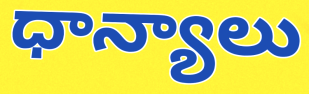
ధాన్యాలు